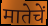
मातेचें